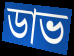
ডাভ